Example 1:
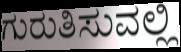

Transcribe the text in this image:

ಗುರುತಿಸುವಲ್ಲಿ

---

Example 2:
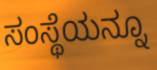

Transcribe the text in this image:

ಸಂಸ್ಥೆಯನ್ನೂ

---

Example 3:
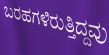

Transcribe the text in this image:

ಬರಹಗಳಿರುತ್ತಿದ್ದವು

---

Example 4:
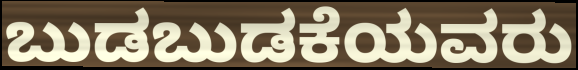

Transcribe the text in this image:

ಬುಡಬುಡಕೆಯವರು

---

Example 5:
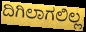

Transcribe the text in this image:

ದಿಗಿಲಾಗಲಿಲ್ಲ